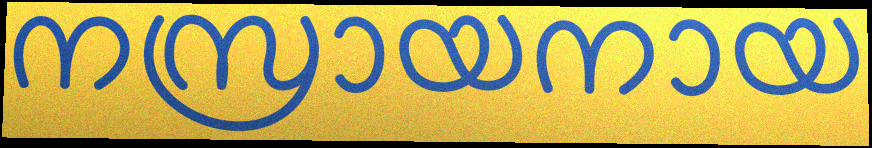
നസ്രായനായ